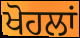
ਖੋਹਲਾਂ